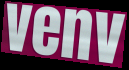
venv